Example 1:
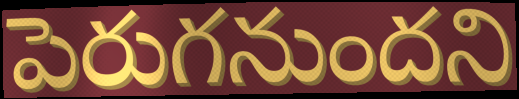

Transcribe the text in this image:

పెరుగనుందని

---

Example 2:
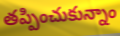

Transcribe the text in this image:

తప్పించుకున్నాం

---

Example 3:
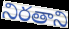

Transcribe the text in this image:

నిరతాని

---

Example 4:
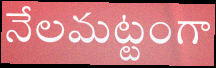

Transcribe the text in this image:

నేలమట్టంగా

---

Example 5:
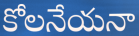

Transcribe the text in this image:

కోలనేయనా